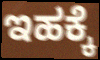
ಇಹಕ್ಕೆ